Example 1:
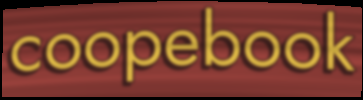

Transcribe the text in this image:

coopebook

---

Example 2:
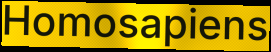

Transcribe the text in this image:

Homosapiens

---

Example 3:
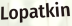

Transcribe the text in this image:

Lopatkin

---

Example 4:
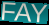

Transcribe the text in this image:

FAY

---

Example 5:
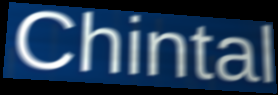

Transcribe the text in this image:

Chintal